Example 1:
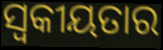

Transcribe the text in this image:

ସ୍ୱକୀୟତାର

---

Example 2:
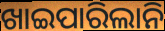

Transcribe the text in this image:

ଖାଇପାରିଲାନି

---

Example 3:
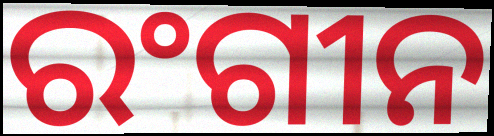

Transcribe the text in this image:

ରଂଗୀନ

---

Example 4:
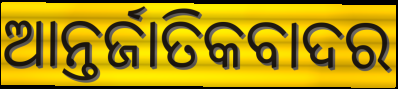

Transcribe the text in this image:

ଆନ୍ତର୍ଜାତିକବାଦର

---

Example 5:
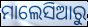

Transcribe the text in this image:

ମାଲେସିଆରୁ